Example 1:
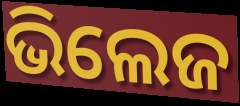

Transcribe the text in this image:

ଭିଲେଜ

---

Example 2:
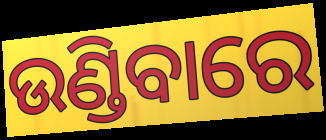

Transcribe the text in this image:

ଉଣ୍ଡିବାରେ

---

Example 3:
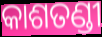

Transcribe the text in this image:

କାଶତଣ୍ଡୀ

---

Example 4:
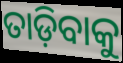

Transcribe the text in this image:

ତାଡ଼ିବାକୁ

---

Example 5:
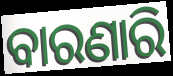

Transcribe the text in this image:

ବାରଣାରି